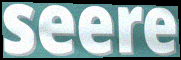
seere